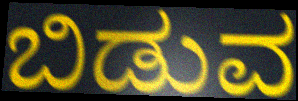
ಬಿಡುವ